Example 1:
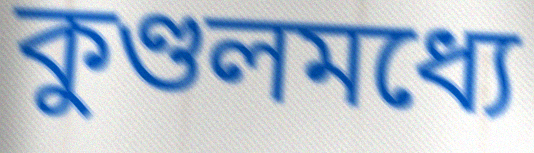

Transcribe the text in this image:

কুণ্ডলমধ্যে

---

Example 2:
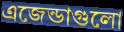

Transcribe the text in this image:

এজেন্ডাগুলো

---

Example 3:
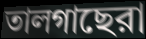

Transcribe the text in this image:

তালগাছেরা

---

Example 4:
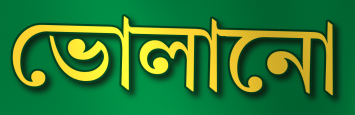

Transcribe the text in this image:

ভোলানো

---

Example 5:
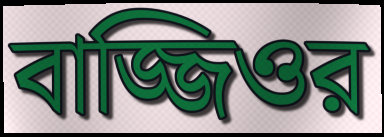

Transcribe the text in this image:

বাজ্জিওর